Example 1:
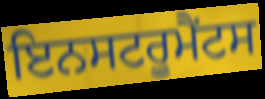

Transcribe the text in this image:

ਇਨਸਟਰੂਮੈਂਟਸ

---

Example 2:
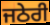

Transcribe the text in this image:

ਜਠੇਰੀ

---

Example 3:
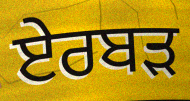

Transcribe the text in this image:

ਏਰਬੜ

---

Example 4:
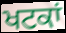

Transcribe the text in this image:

ਖਟਕਾਂ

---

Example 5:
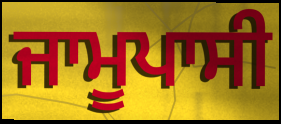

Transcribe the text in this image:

ਜਾਮੂਪਾਸੀ